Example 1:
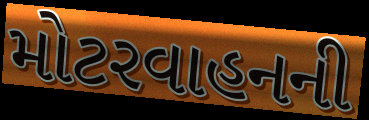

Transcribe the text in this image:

મોટરવાહનની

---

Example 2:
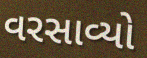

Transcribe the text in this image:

વરસાવ્યો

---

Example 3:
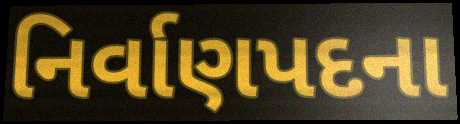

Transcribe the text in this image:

નિર્વાણપદના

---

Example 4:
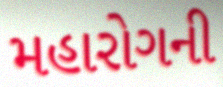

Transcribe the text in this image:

મહારોગની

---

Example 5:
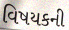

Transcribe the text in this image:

વિષયકની